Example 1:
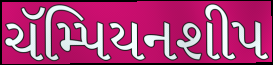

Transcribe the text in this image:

ચૅમ્પિયનશીપ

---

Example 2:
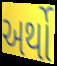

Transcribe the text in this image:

અર્થો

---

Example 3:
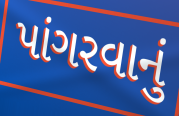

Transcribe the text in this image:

પાંગરવાનું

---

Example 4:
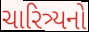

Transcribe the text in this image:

ચારિત્ર્યનો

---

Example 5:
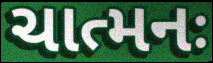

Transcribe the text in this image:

ચાત્મનઃ